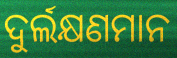
ଦୁର୍ଲକ୍ଷଣମାନ